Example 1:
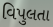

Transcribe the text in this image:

વિપુલતા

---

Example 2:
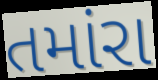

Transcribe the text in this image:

તમાંરા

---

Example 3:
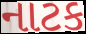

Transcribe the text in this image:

નાટક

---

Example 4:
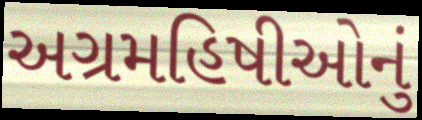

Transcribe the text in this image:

અગ્રમહિષીઓનું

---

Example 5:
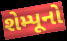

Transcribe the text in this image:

શેમ્પૂનો